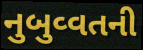
નુબુવ્વતની